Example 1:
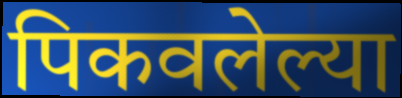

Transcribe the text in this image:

पिकवलेल्या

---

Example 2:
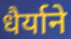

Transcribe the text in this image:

धैर्याने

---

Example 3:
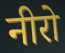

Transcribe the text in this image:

नीरो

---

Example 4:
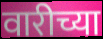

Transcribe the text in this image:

वारीच्या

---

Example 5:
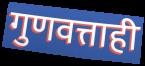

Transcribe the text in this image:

गुणवत्ताही